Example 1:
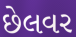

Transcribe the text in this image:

છેલવર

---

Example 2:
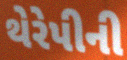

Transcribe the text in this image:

થેરેપીની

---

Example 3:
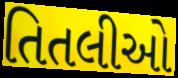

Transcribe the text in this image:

તિતલીઓ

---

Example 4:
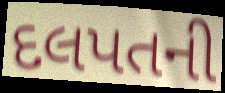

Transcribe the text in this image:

દલપતની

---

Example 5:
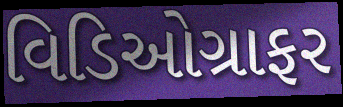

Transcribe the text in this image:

વિડિઓગ્રાફર